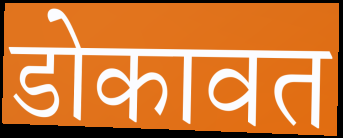
डोकावत